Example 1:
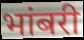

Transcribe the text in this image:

भांबरी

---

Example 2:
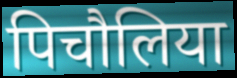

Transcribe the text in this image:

पिचौलिया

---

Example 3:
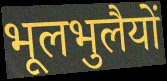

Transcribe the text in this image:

भूलभुलैयों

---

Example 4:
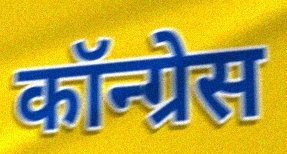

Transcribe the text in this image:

कॉन्ग्रेस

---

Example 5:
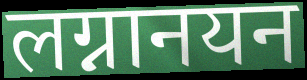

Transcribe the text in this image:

लग्नानयन